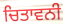
ਚਿਤਾਵਨੀ